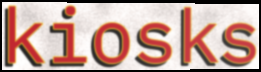
kiosks